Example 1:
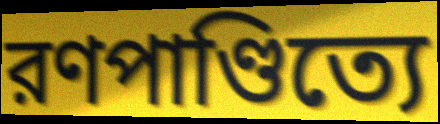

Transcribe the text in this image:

রণপাণ্ডিত্যে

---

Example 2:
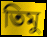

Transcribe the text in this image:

তিমু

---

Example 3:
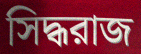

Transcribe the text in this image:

সিদ্ধরাজ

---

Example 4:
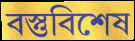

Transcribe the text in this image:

বস্তুবিশেষ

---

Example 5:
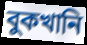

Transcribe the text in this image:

বুকখানি